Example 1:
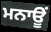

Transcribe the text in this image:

ਮਨਾਊਂ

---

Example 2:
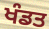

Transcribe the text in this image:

ਖੰਡਤ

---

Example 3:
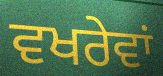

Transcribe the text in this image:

ਵਖਰੇਵਾਂ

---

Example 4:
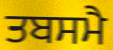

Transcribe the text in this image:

ਤਬਸਮੈ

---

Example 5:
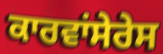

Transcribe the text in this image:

ਕਾਰਵਾਂਸੇਰੇਸ